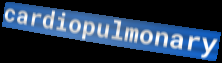
cardiopulmonary